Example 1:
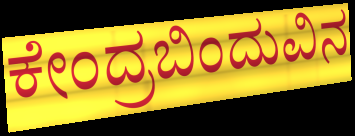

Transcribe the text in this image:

ಕೇಂದ್ರಬಿಂದುವಿನ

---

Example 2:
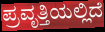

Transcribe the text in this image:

ಪ್ರವೃತ್ತಿಯಲ್ಲಿದೆ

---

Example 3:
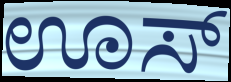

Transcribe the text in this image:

ಊಸ್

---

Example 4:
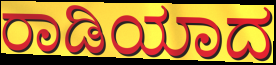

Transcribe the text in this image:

ರಾಡಿಯಾದ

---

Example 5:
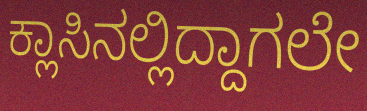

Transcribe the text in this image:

ಕ್ಲಾಸಿನಲ್ಲಿದ್ದಾಗಲೇ